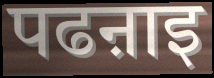
पढऩाइ